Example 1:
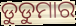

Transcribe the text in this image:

ଡୁଡୁମାର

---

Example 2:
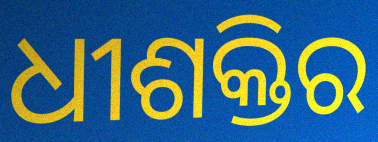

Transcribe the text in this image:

ଧୀଶକ୍ତିର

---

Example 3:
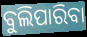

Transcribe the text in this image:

ବୁଲିପାରିବା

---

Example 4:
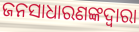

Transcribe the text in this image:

ଜନସାଧାରଣଙ୍କଦ୍ବାରା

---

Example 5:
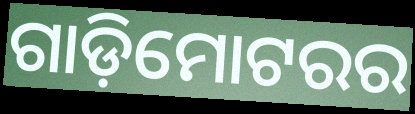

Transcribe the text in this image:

ଗାଡ଼ିମୋଟରର